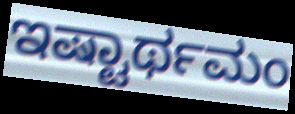
ಇಷ್ಟಾರ್ಥಮಂ